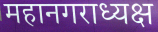
महानगराध्यक्ष